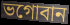
ভগোবান